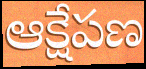
ఆక్షేపణ